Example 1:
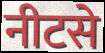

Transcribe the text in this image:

नीटसे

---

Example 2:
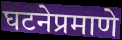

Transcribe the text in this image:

घटनेप्रमाणे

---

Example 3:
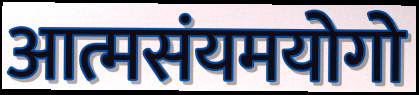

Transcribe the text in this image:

आत्मसंयमयोगो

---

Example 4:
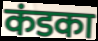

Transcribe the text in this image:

कंडका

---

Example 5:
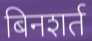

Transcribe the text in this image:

बिनशर्त